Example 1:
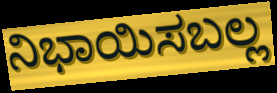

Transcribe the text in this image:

ನಿಭಾಯಿಸಬಲ್ಲ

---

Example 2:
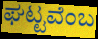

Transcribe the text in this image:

ಘಟ್ಟವೆಂಬ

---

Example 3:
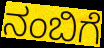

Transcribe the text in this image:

ನಂಬಿಗೆ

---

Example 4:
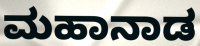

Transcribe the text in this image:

ಮಹಾನಾಡ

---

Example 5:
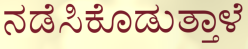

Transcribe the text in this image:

ನಡೆಸಿಕೊಡುತ್ತಾಳೆ